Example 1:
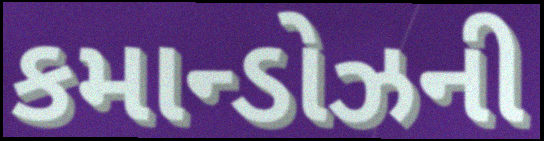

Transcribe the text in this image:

કમાન્ડોઝની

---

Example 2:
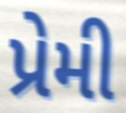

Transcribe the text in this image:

પ્રેમી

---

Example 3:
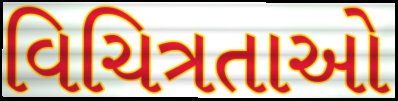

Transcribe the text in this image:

વિચિત્રતાઓ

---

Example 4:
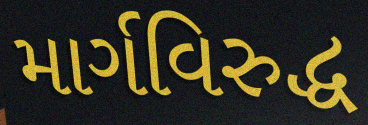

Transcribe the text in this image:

માર્ગવિરુદ્ધ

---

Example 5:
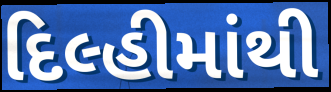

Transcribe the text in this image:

દિલ્હીમાંથી